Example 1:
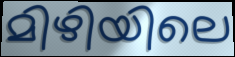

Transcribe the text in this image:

മിഴിയിലെ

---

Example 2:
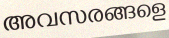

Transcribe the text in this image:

അവസരങ്ങളെ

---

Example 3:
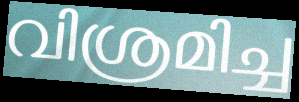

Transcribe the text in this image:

വിശ്രമിച്ച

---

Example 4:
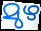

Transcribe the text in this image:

മുഴ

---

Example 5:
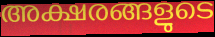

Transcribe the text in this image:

അക്ഷരങ്ങളുടെ